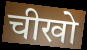
चीखो